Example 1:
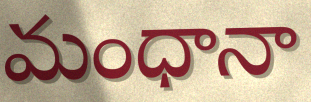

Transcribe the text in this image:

మంధానా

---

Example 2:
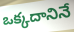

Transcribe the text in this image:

ఒక్కదానినే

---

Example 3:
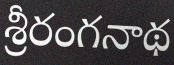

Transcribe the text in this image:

శ్రీరంగనాథ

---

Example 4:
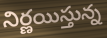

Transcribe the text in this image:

నిర్ణయిస్తున్న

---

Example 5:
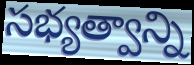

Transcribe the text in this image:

సభ్యత్వాన్ని